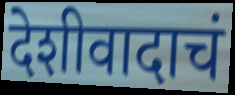
देशीवादाचं